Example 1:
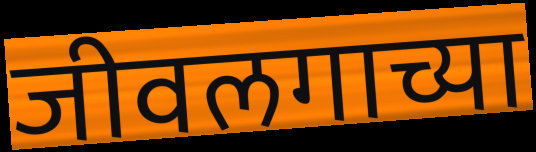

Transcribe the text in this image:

जीवलगाच्या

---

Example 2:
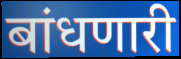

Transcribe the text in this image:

बांधणारी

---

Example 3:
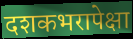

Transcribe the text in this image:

दशकभरापेक्षा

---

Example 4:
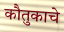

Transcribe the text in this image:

कौतुकाचे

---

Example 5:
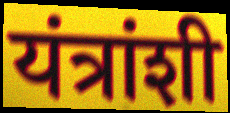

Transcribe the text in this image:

यंत्रांशी